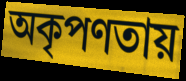
অকৃপণতায়